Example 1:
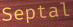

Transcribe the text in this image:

Septal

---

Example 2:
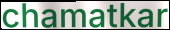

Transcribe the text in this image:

chamatkar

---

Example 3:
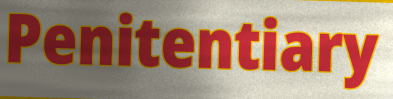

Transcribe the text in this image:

Penitentiary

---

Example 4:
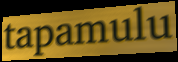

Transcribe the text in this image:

tapamulu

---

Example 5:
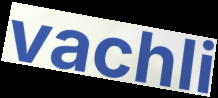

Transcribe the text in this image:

vachli